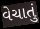
વેચાતું